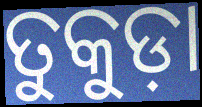
ତୁକୁଡ଼ା